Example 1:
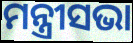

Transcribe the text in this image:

ମନ୍ତ୍ରୀସଭା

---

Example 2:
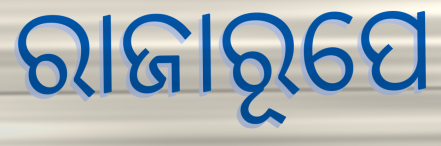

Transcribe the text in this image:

ରାଜାରୂପେ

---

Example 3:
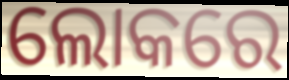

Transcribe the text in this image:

ଲୋକରେ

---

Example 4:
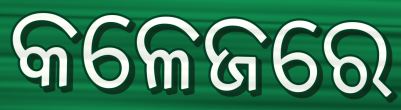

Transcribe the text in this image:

କଳେଜରେ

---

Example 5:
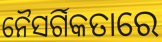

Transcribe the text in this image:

ନୈସର୍ଗିକତାରେ